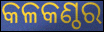
କଳକଣ୍ଠର